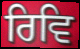
ਰਿਵਿ